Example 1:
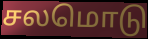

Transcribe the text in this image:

சலமொடு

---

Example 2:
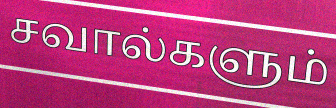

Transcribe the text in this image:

சவால்களும்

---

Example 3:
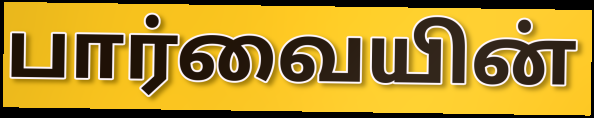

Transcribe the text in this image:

பார்வையின்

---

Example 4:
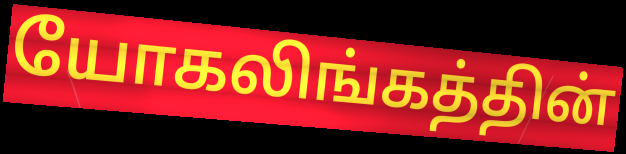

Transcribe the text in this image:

யோகலிங்கத்தின்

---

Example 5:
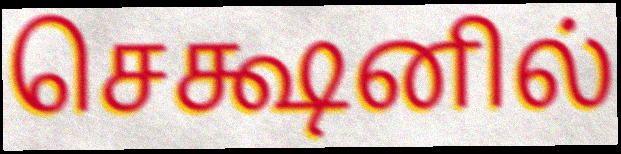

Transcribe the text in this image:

செக்ஷனில்